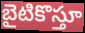
బైటికొస్తూ